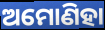
ଅମୋଣିହା